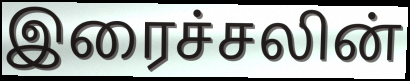
இரைச்சலின்